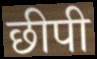
छीपी